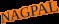
NAGPAL